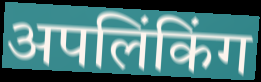
अपलिंकिंग